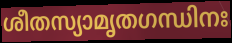
ശീതസ്യാമൃതഗന്ധിനഃ